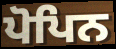
ਪੋਪਿਨ